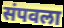
संपवला